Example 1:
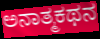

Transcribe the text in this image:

ಅನಾತ್ಮಕಥನ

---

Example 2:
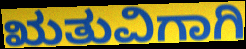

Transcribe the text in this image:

ಋತುವಿಗಾಗಿ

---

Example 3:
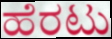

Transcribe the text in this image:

ಹೆರಟು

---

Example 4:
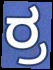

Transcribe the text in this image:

ರ್ರ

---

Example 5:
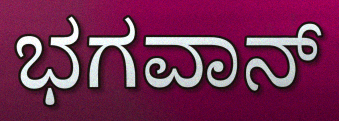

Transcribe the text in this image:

ಭಗವಾನ್